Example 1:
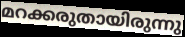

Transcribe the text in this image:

മറക്കരുതായിരുന്നു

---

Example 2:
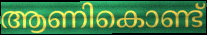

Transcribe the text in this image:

ആണികൊണ്ട്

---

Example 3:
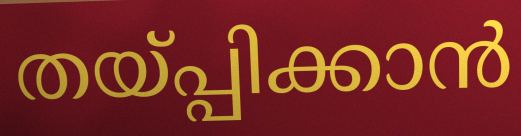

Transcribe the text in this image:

തയ്പ്പിക്കാൻ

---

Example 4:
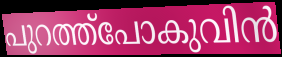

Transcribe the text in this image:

പുറത്ത്പോകുവിൻ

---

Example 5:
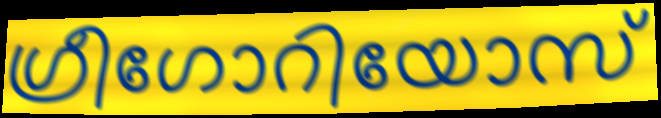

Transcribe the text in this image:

ഗ്രീഗോറിയോസ്